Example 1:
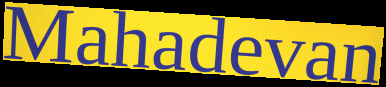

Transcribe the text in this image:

Mahadevan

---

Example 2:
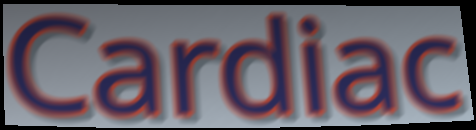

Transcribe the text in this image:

Cardiac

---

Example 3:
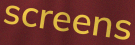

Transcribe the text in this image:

screens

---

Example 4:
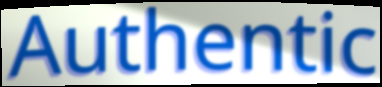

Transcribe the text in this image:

Authentic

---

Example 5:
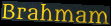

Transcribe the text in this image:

Brahmam